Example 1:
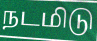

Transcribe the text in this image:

நடமிடு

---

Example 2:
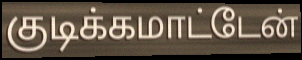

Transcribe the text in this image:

குடிக்கமாட்டேன்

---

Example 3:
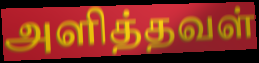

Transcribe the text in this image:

அளித்தவள்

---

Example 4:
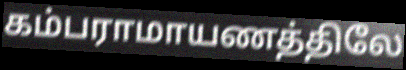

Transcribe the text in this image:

கம்பராமாயணத்திலே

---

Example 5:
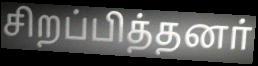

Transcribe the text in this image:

சிறப்பித்தனர்